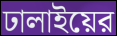
ঢালাইয়ের